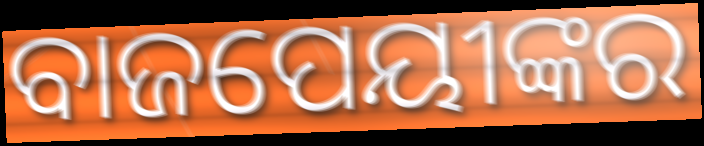
ବାଜପେୟୀଙ୍କର